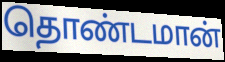
தொண்டமான்